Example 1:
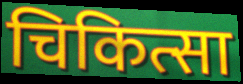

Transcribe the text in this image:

चिकित्सा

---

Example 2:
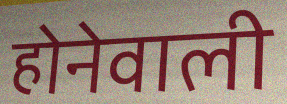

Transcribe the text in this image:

होनेवाली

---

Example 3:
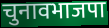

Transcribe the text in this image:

चुनावभाजपा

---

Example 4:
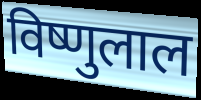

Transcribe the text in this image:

विष्णुलाल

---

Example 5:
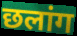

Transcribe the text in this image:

छलांग